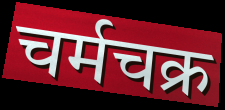
चर्मचक्र